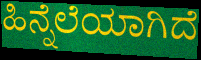
ಹಿನ್ನೆಲೆಯಾಗಿದೆ